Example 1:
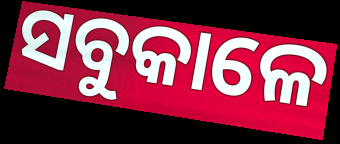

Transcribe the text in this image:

ସବୁକାଳେ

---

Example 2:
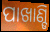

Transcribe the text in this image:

ପାଖାଣ୍ଡି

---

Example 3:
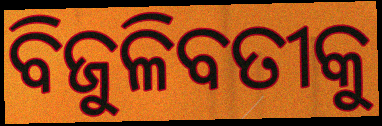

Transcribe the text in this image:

ବିଜୁଳିବତୀକୁ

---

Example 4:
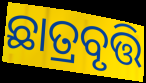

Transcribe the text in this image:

ଛାତ୍ରବୃତ୍ତି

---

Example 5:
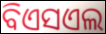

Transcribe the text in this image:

ବିଏସଏଲ